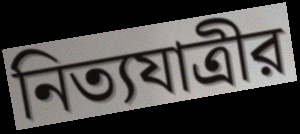
নিত্যযাত্রীর